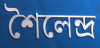
শৈলেন্দ্র